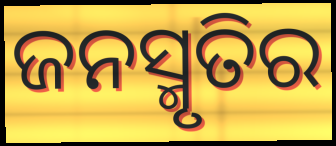
ଜନସ୍ମୃତିର